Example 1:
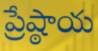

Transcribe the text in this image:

ప్రేష్ఠాయ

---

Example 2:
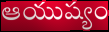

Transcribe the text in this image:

ఆయుష్యం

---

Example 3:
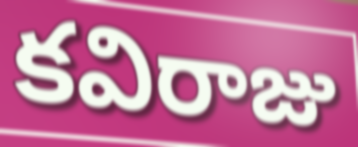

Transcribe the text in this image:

కవిరాజు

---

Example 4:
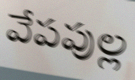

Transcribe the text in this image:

వేపపుల్ల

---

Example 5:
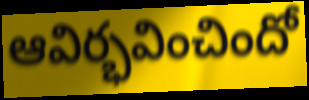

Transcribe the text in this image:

ఆవిర్భవించిందో